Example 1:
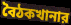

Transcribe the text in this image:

বৈঠকখানার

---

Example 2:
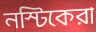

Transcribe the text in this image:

নস্টিকেরা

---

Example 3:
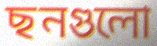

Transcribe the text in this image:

ছনগুলো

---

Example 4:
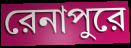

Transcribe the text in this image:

রেনাপুরে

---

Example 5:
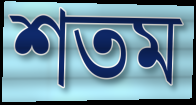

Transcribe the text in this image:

শতম